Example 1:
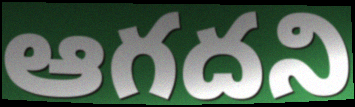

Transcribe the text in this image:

ఆగదని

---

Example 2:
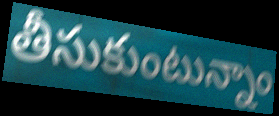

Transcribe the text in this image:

తీసుకుంటున్నాం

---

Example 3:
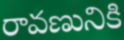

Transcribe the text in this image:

రావణునికి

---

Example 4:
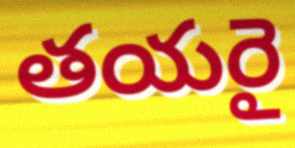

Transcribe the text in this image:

తయరై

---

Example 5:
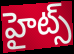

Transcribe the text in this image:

హైట్స్